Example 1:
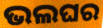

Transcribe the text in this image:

ଭଲଘର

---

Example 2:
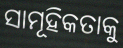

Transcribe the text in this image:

ସାମୂହିକତାକୁ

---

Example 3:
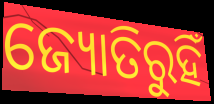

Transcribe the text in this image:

ଜ୍ୟୋତିରୁହିଁ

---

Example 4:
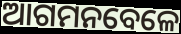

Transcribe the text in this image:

ଆଗମନବେଳେ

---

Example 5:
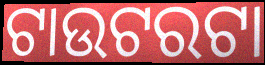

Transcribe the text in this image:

ଟାଉଟରଟା